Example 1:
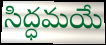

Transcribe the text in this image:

సిద్ధమయే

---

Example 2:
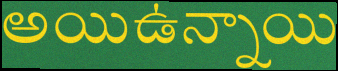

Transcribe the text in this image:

అయిఉన్నాయి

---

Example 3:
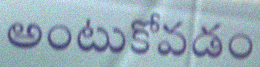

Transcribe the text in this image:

అంటుకోవడం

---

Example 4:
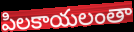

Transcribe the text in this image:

పిలకాయలంతా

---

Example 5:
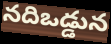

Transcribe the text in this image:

నదిఒడ్డున